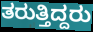
ತರುತ್ತಿದ್ದರು